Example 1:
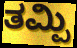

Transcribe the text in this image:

ತಮ್ಪಿ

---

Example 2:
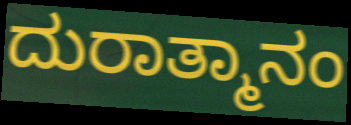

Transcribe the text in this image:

ದುರಾತ್ಮಾನಂ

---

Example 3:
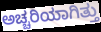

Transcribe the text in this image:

ಅಚ್ಚರಿಯಾಗಿತ್ತು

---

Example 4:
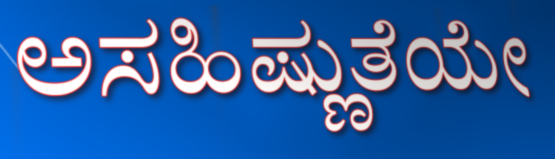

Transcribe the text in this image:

ಅಸಹಿಷ್ಣುತೆಯೇ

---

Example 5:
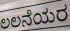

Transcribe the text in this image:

ಲಲನೆಯರ